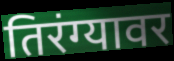
तिरंग्यावर